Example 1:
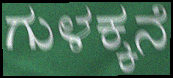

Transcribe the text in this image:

ಗುಳಕ್ಕನೆ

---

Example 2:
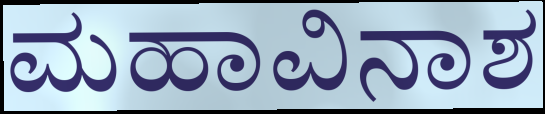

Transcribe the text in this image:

ಮಹಾವಿನಾಶ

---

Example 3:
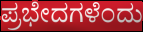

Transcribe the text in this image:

ಪ್ರಭೇದಗಳೆಂದು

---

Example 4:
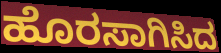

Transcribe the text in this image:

ಹೊರಸಾಗಿಸಿದ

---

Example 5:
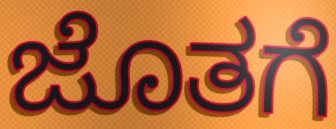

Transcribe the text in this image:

ಜೊತಗೆ